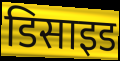
डिसाइड